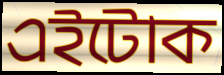
এইটোক